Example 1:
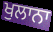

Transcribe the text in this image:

ਖੁਲਾਨਾ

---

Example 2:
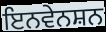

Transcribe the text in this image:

ਇਨਵੇਨਸ਼ਨ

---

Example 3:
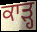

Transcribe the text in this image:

ਕਾੜ੍ਹ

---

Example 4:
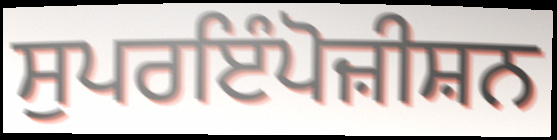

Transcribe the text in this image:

ਸੁਪਰਇੰਪੋਜ਼ੀਸ਼ਨ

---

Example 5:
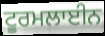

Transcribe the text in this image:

ਟੂਰਮਲਾਈਨ